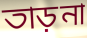
তাড়না